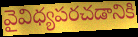
వైవిధ్యపరచడానికి